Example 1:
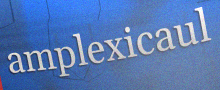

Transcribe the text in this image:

amplexicaul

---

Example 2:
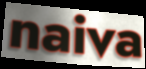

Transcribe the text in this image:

naiva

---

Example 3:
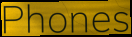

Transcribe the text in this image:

Phones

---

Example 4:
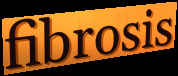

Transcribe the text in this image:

fibrosis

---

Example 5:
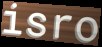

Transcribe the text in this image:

isro